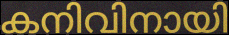
കനിവിനായി